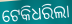
ଟେକିଧରିଲା